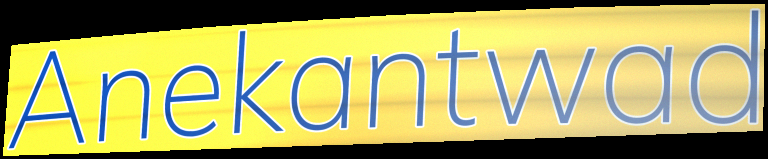
Anekantwad